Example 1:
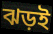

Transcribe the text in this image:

ঝড়ই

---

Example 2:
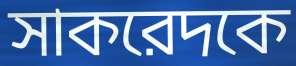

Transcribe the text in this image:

সাকরেদকে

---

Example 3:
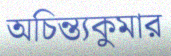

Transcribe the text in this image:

অচিন্ত্যকুমার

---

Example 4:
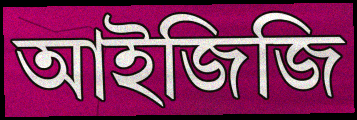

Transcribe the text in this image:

আইজিজি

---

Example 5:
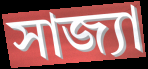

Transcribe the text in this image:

সাজ্যা